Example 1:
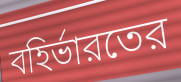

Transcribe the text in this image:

বহির্ভারতের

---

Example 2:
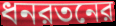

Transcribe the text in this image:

ধনরতনের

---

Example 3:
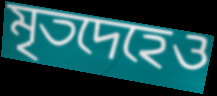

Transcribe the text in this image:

মৃতদেহেও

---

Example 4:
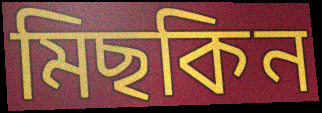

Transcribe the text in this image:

মিছকিন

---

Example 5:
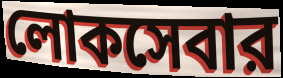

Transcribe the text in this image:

লোকসেবার